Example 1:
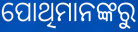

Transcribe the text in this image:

ପୋଥିମାନଙ୍କରୁ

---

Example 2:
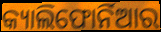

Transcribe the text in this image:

କ୍ୟାଲିଫୋର୍ନିଆର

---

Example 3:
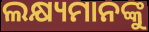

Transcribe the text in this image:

ଲକ୍ଷ୍ୟମାନଙ୍କୁ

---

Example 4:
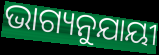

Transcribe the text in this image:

ଭାଗ୍ୟନୁଯାୟୀ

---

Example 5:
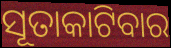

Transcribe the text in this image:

ସୂତାକାଟିବାର